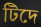
টিদে